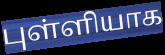
புள்ளியாக